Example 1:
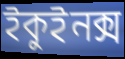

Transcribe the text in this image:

ইকুইনক্স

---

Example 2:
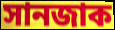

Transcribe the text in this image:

সানজাক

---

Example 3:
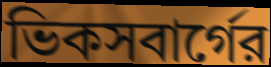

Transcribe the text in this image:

ভিকসবার্গের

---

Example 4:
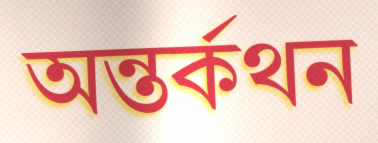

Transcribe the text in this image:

অন্তর্কথন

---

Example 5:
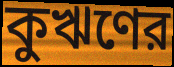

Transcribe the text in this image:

কুঋণের